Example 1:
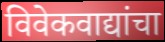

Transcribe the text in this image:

विवेकवाद्यांचा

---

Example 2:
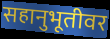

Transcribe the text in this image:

सहानुभूतीवर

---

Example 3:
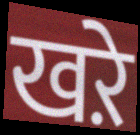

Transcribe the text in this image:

खऱे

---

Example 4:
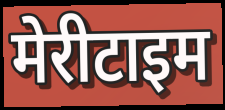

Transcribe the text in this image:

मेरीटाइम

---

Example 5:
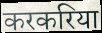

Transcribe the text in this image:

करकरिया